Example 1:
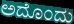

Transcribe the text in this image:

ಅದೊಂದು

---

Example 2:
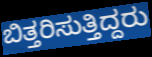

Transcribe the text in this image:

ಬಿತ್ತರಿಸುತ್ತಿದ್ದರು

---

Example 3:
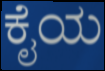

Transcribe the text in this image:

ಕೈಯ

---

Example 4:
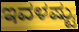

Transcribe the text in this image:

ಇವಳಷ್ಟು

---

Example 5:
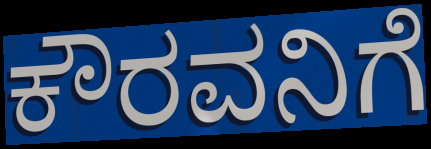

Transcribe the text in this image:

ಕೌರವನಿಗೆ